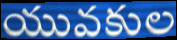
యువకుల